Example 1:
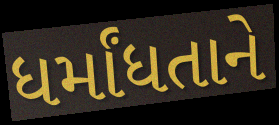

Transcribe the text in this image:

ધર્માંધતાને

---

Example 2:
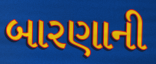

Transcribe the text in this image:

બારણાની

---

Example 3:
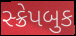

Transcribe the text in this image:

સ્ક્રેપબુક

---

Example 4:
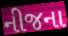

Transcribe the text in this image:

નીજના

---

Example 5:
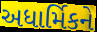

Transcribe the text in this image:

અધાર્મિકને